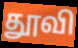
தூவி